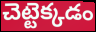
చెట్టెక్కడం